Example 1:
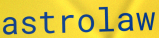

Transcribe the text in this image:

astrolaw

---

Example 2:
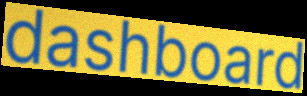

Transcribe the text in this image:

dashboard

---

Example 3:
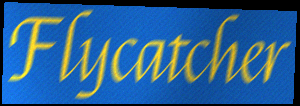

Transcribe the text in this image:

Flycatcher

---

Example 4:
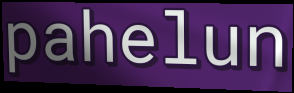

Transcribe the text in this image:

pahelun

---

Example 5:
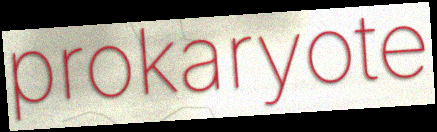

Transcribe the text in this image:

prokaryote